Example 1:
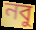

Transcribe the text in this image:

নবু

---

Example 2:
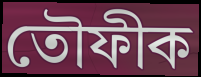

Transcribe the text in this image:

তৌফীক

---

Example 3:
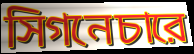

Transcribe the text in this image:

সিগনেচারে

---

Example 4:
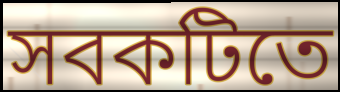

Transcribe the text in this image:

সবকটিতে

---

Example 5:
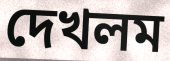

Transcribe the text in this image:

দেখলম